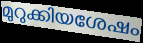
മുറുക്കിയശേഷം